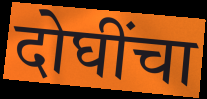
दोघींचा